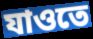
যাওতে